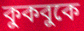
কুকবুকে